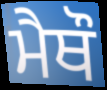
ਮੈਥੌ